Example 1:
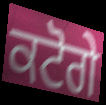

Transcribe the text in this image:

ਕਟੋਗੇ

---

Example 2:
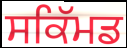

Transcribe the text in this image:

ਸਕਿੱਮਡ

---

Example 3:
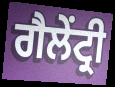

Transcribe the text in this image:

ਗੈਲੇਂਟ੍ਰੀ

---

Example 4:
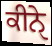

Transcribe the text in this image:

ਕੀਨੇੑ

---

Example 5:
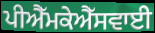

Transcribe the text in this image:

ਪੀਐੱਮਕੇਐੱਸਵਾਈ